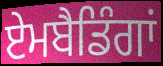
ਏਮਬੈਡਿੰਗਾਂ